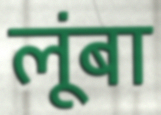
लूंबा